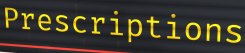
Prescriptions